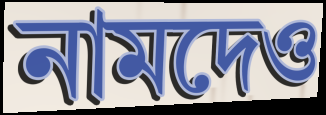
নামদেও